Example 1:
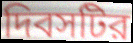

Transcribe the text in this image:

দিবসটির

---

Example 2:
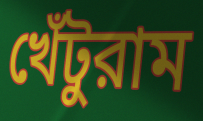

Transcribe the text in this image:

খেঁটুরাম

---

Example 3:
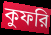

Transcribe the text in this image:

কুফরি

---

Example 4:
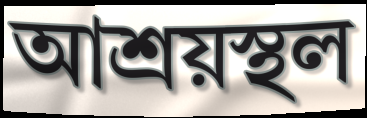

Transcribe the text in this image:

আশ্রয়স্থল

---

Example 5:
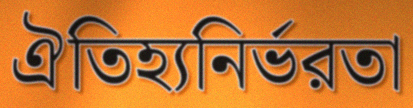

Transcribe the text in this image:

ঐতিহ্যনির্ভরতা